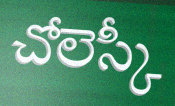
చోలెస్కీ